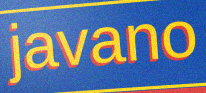
javano